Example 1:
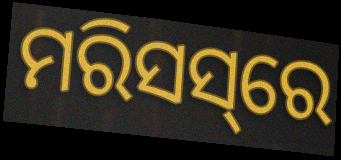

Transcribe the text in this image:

ମରିସସ୍‌ରେ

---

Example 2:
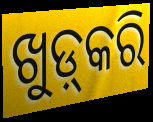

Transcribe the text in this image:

ଖୁଡ଼୍‍କରି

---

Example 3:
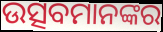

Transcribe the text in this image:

ଉତ୍ସବମାନଙ୍କର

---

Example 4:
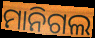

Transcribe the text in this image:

ମାନିଗଲ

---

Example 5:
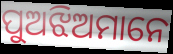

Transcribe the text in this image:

ପୁଅଝିଅମାନେ